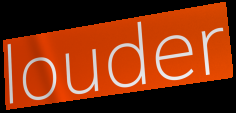
louder